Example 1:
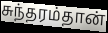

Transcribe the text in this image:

சுந்தரம்தான்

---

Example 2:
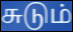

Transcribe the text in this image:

சுடும்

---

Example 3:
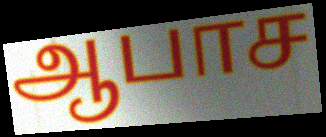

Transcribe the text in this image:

ஆபாச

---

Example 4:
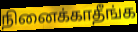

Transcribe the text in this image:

நினைக்காதீங்க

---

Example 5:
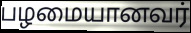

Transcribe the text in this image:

பழமையானவர்